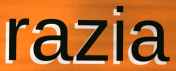
razia